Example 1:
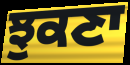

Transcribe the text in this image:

ਝੁਕਣਾ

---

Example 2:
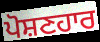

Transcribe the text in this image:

ਪੋਸ਼ਣਹਾਰ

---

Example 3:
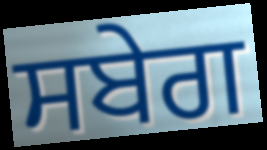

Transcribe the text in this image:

ਸਬੇਗ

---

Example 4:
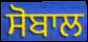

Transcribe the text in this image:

ਸੋਬਾਲ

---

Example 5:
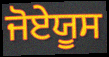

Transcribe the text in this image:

ਜੋਏਯੂਸ